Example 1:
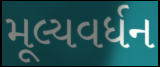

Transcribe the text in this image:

મૂલ્યવર્ધન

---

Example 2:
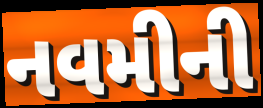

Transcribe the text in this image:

નવમીની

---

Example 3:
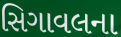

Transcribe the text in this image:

સિગાવલના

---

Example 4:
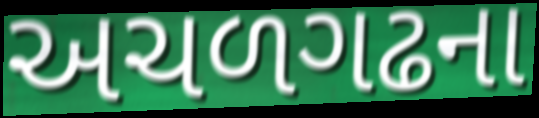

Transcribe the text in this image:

અચળગઢના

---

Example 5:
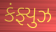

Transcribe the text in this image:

કંફ્યુઝ